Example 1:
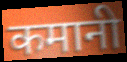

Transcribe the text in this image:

कमानी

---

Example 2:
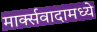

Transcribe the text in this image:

मार्क्सवादामध्ये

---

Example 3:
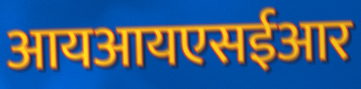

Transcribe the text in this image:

आयआयएसईआर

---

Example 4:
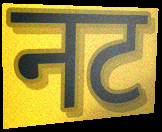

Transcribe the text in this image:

नट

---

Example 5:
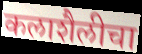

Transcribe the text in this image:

कलाशैलीचा